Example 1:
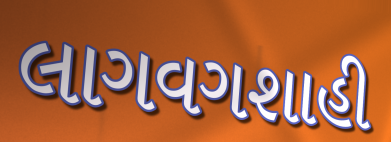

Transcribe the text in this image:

લાગવગશાહી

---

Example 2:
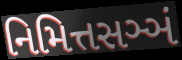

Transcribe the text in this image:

નિમિત્તસઞ્ઞં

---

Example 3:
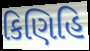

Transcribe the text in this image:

કિણિહિ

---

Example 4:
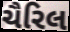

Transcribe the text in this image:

ચૈરિલ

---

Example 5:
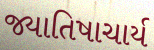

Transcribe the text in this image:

જ્યાતિષાચાર્ય